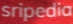
sripedia